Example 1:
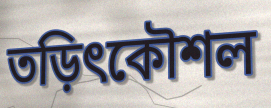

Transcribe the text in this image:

তড়িৎকৌশল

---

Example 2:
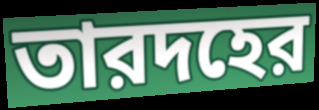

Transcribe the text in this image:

তারদহের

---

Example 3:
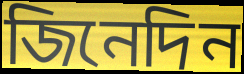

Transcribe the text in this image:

জিনেদিন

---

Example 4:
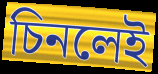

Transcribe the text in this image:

চিনলেই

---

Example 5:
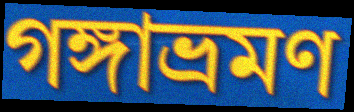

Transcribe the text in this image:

গঙ্গাভ্রমণ